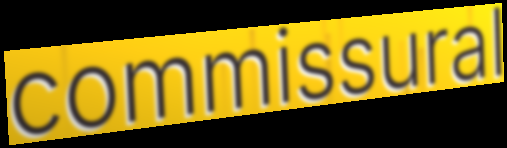
commissural